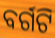
ବର୍ଗଟି